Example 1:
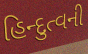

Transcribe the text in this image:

હિન્દુત્વની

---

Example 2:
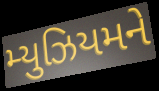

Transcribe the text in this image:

મ્યુઝિયમને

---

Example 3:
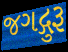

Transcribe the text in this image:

જગદ્ગુરૂ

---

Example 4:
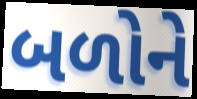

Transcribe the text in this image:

બળોને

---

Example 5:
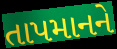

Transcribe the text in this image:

તાપમાનને